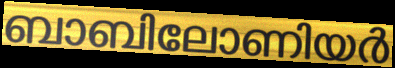
ബാബിലോണിയർ